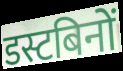
डस्टबिनों